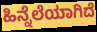
ಹಿನ್ನೆಲೆಯಾಗಿದೆ